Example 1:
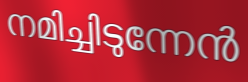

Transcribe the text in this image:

നമിച്ചിടുന്നേൻ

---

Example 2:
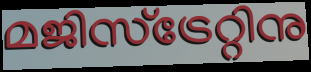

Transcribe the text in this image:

മജിസ്ട്രേറ്റിനു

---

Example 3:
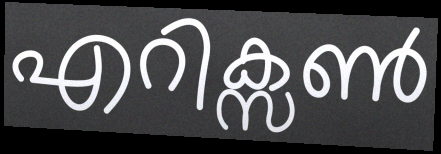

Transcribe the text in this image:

എറിക്സൺ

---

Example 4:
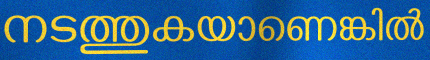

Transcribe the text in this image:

നടത്തുകയാണെങ്കിൽ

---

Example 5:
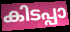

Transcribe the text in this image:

കിടപ്പാ